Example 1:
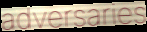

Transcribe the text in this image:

adversaries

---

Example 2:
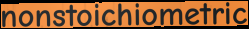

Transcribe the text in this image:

nonstoichiometric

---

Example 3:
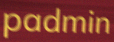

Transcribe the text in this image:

padmin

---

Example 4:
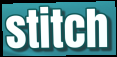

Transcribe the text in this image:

stitch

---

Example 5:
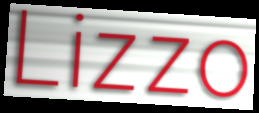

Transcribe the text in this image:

Lizzo